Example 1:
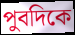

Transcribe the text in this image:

পুবদিকে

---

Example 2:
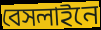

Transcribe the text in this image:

বেসলাইনে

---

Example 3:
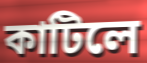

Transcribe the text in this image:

কাটিলে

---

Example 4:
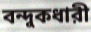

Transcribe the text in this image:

বন্দুকধারী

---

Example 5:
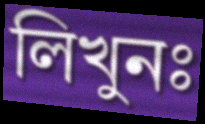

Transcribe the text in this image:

লিখুনঃ